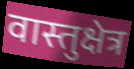
वास्तुक्षेत्र